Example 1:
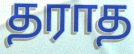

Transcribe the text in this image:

தராத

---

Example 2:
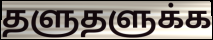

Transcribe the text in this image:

தளுதளுக்க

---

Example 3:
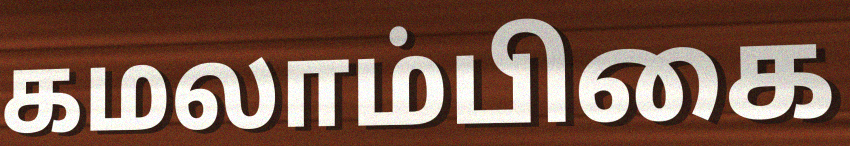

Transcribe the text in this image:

கமலாம்பிகை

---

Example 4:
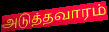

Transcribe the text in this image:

அடுத்தவாரம்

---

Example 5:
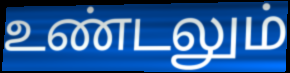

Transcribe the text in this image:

உண்டலும்